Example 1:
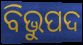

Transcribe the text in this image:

ବିଭୁପଦ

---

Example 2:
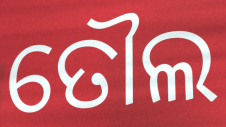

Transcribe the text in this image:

ତୌଲ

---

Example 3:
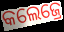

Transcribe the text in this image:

କଲେଜ୍ରେ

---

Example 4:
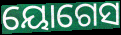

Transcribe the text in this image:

ୟୋଗେସ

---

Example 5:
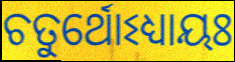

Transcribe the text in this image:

ଚତୁର୍ଥୋଽଧ୍ୟାୟଃ